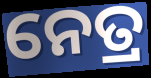
ନେତ୍ର